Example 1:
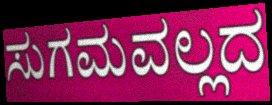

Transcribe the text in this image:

ಸುಗಮವಲ್ಲದ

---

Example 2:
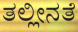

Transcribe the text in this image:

ತಲ್ಲೀನತೆ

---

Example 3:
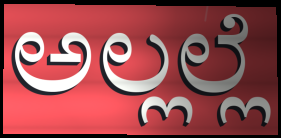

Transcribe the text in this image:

ಅಲ್ಲಲ್ಲೆ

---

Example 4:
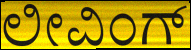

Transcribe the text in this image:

ಲೀವಿಂಗ್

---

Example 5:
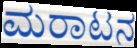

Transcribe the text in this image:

ಮರಾಟನ